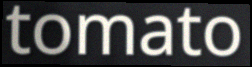
tomato